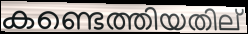
കണ്ടെത്തിയതില്